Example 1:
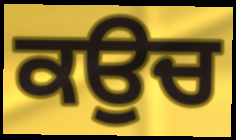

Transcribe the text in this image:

ਕਉਚ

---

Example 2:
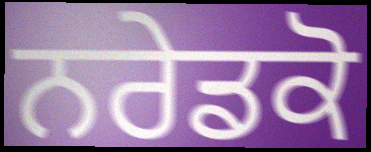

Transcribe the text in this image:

ਨਰੇਡਕੋ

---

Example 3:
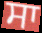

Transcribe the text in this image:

ਸਾ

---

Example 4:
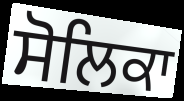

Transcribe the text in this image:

ਸੋਲਿਕਾ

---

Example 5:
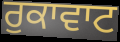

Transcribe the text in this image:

ਰੁਕਾਵਾਟ